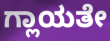
ಗ್ಲಾಯತೇ